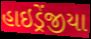
હાઇડ્રેંજીયા